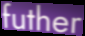
futher